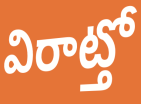
విరాట్తో